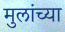
मुलांच्या